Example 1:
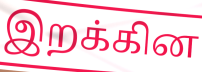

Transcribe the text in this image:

இறக்கின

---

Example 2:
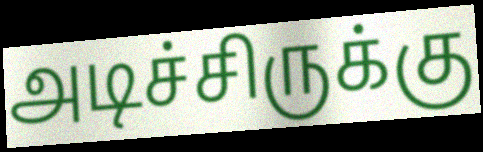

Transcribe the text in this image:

அடிச்சிருக்கு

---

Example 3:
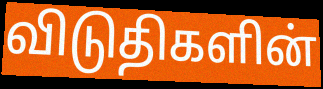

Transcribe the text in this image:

விடுதிகளின்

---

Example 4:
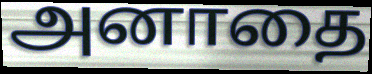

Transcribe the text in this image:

அனாதை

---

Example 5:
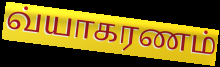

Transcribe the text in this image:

வ்யாகரணம்